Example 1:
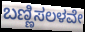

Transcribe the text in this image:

ಬಣ್ಣಿಸಲಳವೇ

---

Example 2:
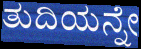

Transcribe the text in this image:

ತುದಿಯನ್ನೇ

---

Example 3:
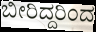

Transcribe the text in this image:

ಬೀರಿದ್ದರಿಂದ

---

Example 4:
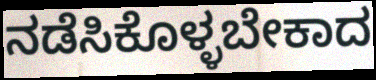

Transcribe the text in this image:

ನಡೆಸಿಕೊಳ್ಳಬೇಕಾದ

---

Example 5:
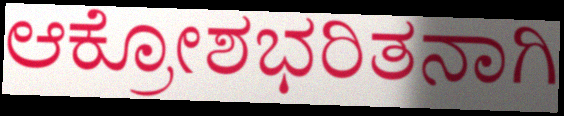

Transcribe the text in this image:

ಆಕ್ರೋಶಭರಿತನಾಗಿ